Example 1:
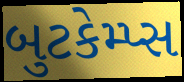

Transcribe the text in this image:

બુટકેમ્પ્સ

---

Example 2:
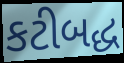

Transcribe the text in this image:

કટીબદ્ધ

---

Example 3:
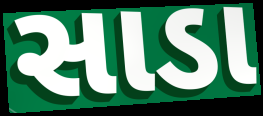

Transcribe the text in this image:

સાડા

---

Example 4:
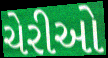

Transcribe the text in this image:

ચેરીઓ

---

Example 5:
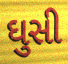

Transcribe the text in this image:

ઘુસી